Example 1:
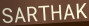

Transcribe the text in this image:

SARTHAK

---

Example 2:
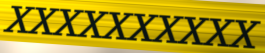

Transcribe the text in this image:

XXXXXXXXXX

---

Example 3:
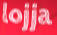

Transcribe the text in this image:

lojja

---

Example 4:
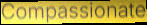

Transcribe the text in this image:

Compassionate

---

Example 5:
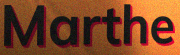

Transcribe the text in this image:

Marthe